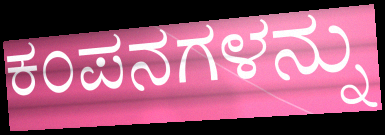
ಕಂಪನಗಳನ್ನು